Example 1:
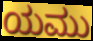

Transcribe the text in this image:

ಯಮು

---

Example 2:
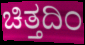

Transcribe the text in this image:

ಚಿತ್ತದಿಂ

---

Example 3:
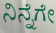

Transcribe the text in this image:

ನಿನ್ನೆಗೇ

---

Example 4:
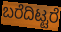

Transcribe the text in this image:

ಬರೆದಿಟ್ಟರೆ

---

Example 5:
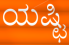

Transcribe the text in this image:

ಯಷ್ಟಿ